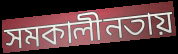
সমকালীনতায়